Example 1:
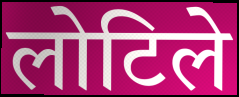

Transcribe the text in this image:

लोटिले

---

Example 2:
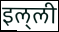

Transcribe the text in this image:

इल्ली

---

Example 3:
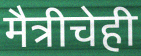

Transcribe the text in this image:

मैत्रीचेही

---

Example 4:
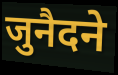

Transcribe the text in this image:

जुनैदने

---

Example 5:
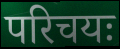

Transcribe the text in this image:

परिचयः